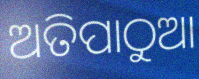
ଅତିପାଠୁଆ